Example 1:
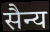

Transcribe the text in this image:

सैन्‍य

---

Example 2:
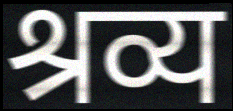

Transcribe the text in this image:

श्रव्य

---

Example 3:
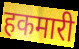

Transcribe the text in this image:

हकमारी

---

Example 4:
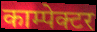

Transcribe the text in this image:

काम्पेक्टर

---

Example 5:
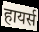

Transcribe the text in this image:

हायर्स